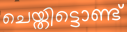
ചെയ്തിട്ടൊണ്ട്